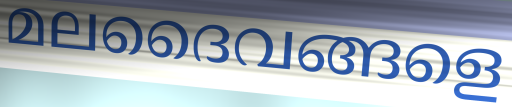
മലദൈവങ്ങളെ